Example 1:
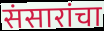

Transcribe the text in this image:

संसारांचा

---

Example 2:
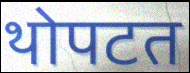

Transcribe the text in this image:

थोपटत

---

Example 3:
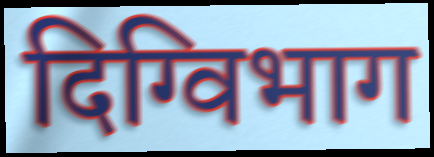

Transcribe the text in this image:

दिग्विभाग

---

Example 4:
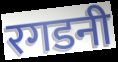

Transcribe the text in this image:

रगडनी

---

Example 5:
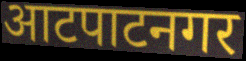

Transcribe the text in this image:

आटपाटनगर